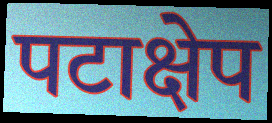
पटाक्षेप